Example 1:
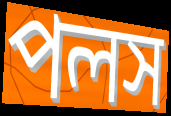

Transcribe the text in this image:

পলস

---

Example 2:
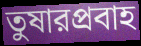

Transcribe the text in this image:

তুষারপ্রবাহ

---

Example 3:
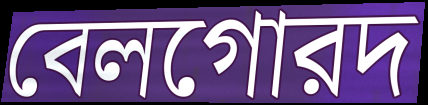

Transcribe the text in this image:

বেলগোরদ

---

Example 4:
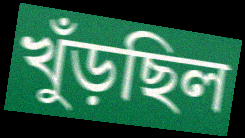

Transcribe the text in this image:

খুঁড়ছিল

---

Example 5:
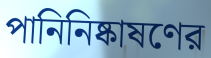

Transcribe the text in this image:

পানিনিষ্কাষণের